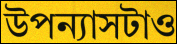
উপন্যাসটাও